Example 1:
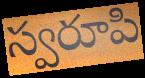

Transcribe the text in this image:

స్వరూపి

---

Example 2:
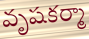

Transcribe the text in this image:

వృషకర్మా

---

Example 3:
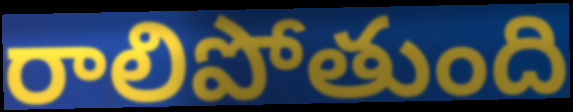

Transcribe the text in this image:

రాలిపోతుంది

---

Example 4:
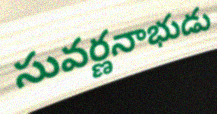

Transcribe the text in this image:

సువర్ణనాభుడు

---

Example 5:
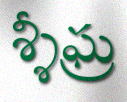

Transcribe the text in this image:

శ్శీఘ్ర